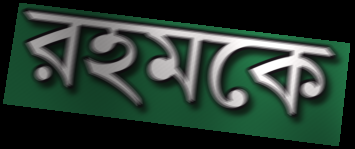
রহমকে